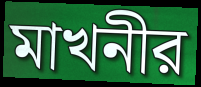
মাখনীর